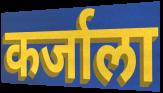
कर्जाला